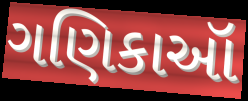
ગણિકાઑ